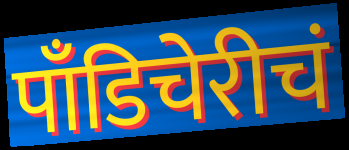
पाँडिचेरीचं